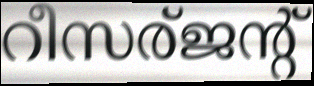
റീസര്ജന്റ്